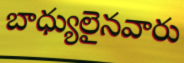
బాధ్యులైనవారు